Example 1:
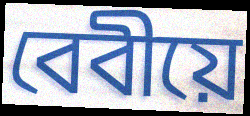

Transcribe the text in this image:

বেবীয়ে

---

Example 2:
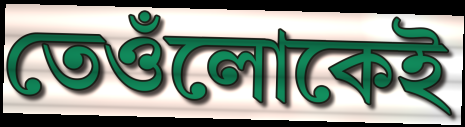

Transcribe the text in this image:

তেওঁলোকেই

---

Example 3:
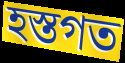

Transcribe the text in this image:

হস্তগত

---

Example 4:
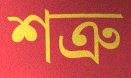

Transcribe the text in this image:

শত্ৰু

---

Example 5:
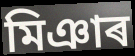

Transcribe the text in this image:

মিঞাৰ